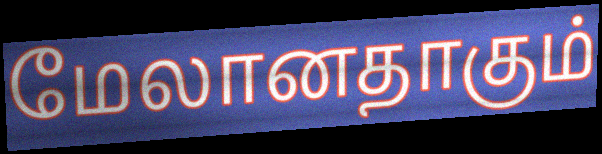
மேலானதாகும்